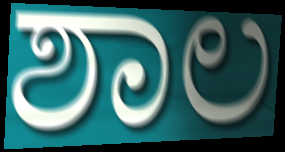
ಶಾಲ